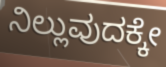
ನಿಲ್ಲುವುದಕ್ಕೇ